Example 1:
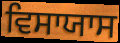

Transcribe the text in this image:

ਵਿਸਾਯਾਸ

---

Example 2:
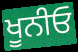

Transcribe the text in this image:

ਖੂਨੀਓ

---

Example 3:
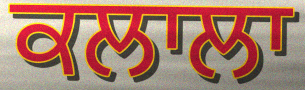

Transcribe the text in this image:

ਕਲਾਲਾ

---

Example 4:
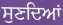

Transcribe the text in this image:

ਸੁਣਦਿਆਂ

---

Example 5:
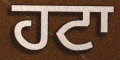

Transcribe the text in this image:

ਹਟਾ